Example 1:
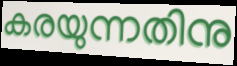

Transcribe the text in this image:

കരയുന്നതിനു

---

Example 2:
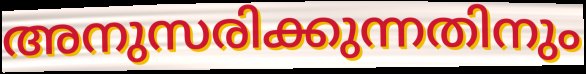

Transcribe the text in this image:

അനുസരിക്കുന്നതിനും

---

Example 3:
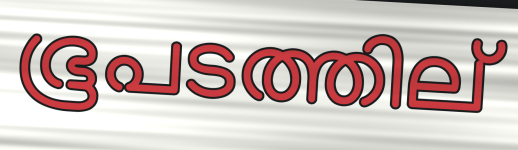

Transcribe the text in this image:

ഭൂപടത്തില്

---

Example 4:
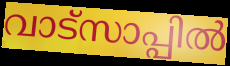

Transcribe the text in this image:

വാട്സാപ്പിൽ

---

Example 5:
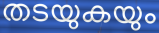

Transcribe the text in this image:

തടയുകയും